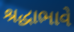
શ્રદ્ધાભાવે